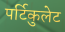
पर्टिकुलेट